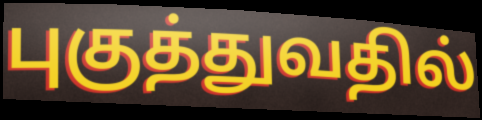
புகுத்துவதில்